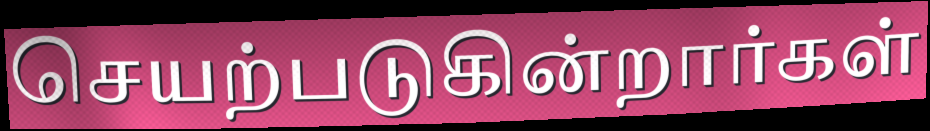
செயற்படுகின்றார்கள்